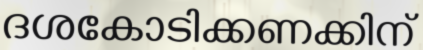
ദശകോടിക്കണക്കിന്